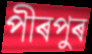
পীৰপুৰ